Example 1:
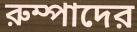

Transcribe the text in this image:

রুম্পাদের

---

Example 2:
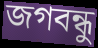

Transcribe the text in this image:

জগবন্ধু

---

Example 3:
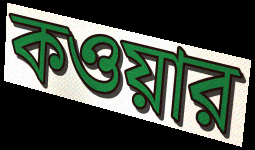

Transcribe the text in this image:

কওয়ার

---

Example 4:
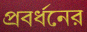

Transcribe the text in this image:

প্রবর্ধনের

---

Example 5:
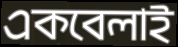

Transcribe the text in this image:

একবেলাই